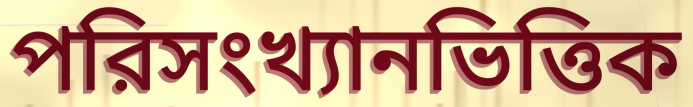
পরিসংখ্যানভিত্তিক